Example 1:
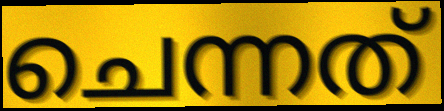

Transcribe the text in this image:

ചെന്നത്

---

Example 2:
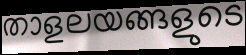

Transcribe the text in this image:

താളലയങ്ങളുടെ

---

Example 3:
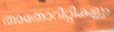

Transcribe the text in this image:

അതോറിറ്റികളും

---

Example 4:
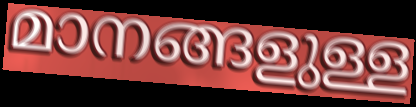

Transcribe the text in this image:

മാനങ്ങളുള്ള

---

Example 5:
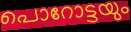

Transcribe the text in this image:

പൊറോട്ടയും